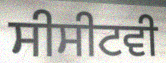
ਸੀਸੀਟਵੀ